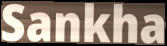
Sankha